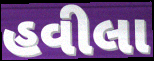
હવીલા